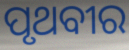
ପୃଥବୀର